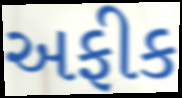
અફીક